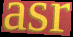
asr